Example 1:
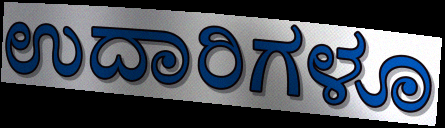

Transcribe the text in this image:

ಉದಾರಿಗಳೂ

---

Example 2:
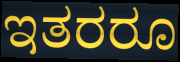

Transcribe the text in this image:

ಇತರರೂ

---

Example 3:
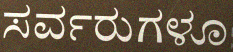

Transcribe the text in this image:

ಸರ್ವರುಗಳೂ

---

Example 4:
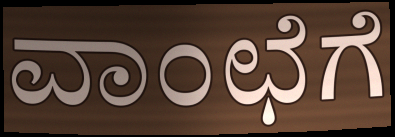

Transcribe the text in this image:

ವಾಂಛೆಗೆ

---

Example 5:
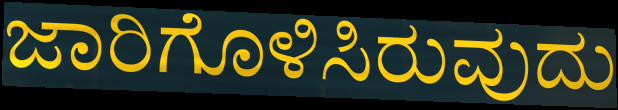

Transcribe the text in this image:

ಜಾರಿಗೊಳಿಸಿರುವುದು